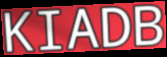
KIADB